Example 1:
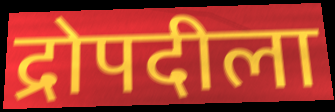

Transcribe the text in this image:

द्रोपदीला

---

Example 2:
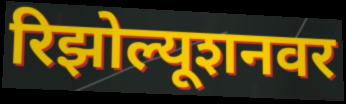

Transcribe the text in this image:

रिझोल्यूशनवर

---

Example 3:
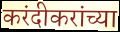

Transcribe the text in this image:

करंदीकरांच्या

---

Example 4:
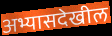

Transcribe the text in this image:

अभ्यासदेखील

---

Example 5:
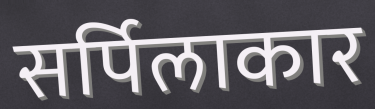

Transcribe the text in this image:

सर्पिलाकार